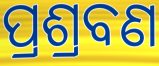
ପ୍ରଶ୍ରବଣ